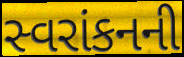
સ્વરાંકનની